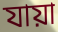
যায়া